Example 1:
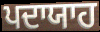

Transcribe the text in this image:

ਪਦਾਯਾਹ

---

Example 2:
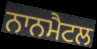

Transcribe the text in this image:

ਨਾਨਮੈਟਲ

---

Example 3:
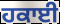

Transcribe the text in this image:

ਹਕਾਈ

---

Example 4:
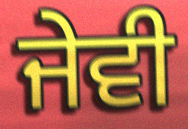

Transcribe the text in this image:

ਜੇਵੀ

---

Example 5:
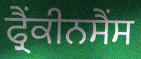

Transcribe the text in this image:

ਫ੍ਰੈਂਕੀਨਸੈਂਸ